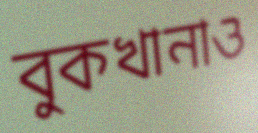
বুকখানাও